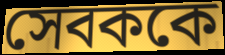
সেবককে